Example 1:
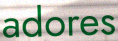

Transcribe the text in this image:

adores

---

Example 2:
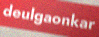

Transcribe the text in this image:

deulgaonkar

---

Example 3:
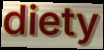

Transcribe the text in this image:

diety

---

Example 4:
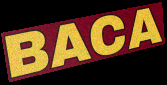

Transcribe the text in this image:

BACA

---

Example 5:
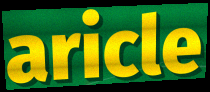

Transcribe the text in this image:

aricle